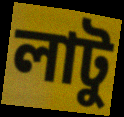
লাটু